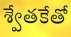
శ్వేతకేతో